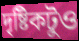
দৃষ্টিকটুও